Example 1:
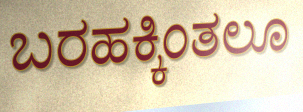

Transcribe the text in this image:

ಬರಹಕ್ಕಿಂತಲೂ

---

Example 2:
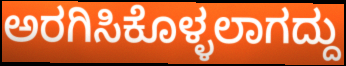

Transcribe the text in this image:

ಅರಗಿಸಿಕೊಳ್ಳಲಾಗದ್ದು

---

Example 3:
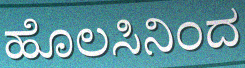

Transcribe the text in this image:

ಹೊಲಸಿನಿಂದ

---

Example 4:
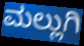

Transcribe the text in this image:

ಮಲ್ಲುಗಿ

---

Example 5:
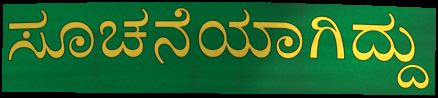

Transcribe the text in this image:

ಸೂಚನೆಯಾಗಿದ್ದು